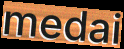
medai